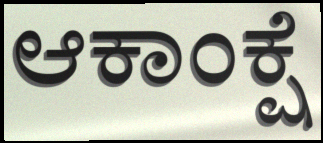
ಆಕಾಂಕ್ಷೆ